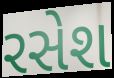
રસેશ